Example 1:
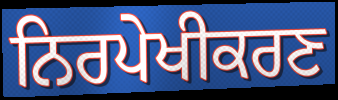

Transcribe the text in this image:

ਨਿਰਪੇਖੀਕਰਣ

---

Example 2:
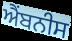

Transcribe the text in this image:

ਐਂਬਨੀਸ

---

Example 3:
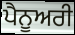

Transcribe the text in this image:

ਪੈਨੂਅਰੀ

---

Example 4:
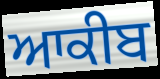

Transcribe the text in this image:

ਆਕੀਬ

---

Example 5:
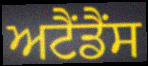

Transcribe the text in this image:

ਅਟੈਂਡੈਂਸ